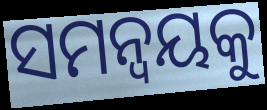
ସମନ୍ବୟକୁ